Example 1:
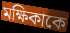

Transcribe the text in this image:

মক্ষিকাকে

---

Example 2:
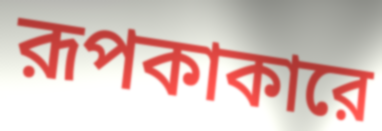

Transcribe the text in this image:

রূপকাকারে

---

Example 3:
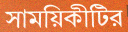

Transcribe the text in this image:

সাময়িকীটির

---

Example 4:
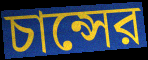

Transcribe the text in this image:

চান্সের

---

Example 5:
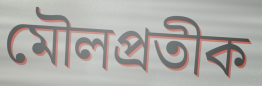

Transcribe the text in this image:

মৌলপ্রতীক